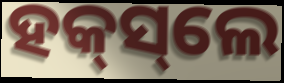
ହକ୍‌ସ୍‌ଲେ